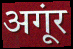
अगूंर